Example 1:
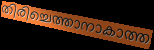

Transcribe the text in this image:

തിരിച്ചെത്താനാകാത്ത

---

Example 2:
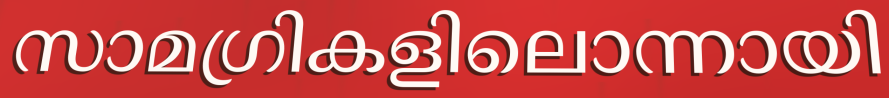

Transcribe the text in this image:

സാമഗ്രികളിലൊന്നായി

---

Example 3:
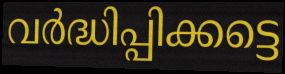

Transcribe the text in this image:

വർദ്ധിപ്പിക്കട്ടെ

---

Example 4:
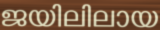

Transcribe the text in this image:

ജയിലിലായ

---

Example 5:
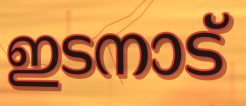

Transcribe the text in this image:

ഇടനാട്